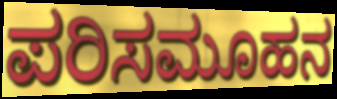
ಪರಿಸಮೂಹನ